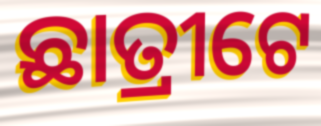
ଛାତ୍ରୀଟେ